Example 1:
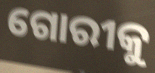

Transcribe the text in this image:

ଗୋରୀକୁ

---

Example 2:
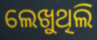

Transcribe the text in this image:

ଲେଖୁଥିଲି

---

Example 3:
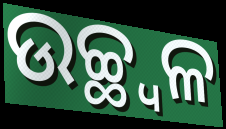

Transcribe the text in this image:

ଉଚ୍ଛ୍ଵଳ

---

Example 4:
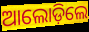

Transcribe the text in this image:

ଆଲୋଡ଼ିଲେ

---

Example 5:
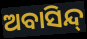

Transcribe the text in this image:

ଅବାସିନ୍ଦ୍